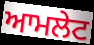
ਆਮਲੇਟ